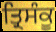
ਤ੍ਰਿਸੰਕੂ